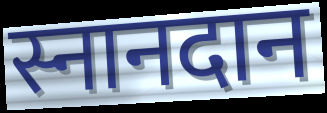
स्नानदान